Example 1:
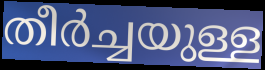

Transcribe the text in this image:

തീർച്ചയുള്ള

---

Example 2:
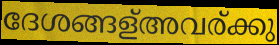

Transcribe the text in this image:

ദേശങ്ങള്അവര്ക്കു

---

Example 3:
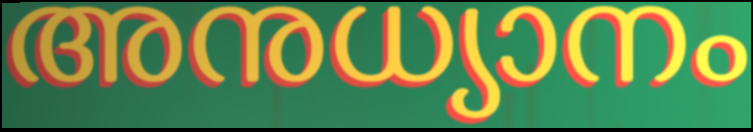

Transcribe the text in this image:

അനുധ്യാനം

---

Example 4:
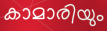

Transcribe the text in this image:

കാമാരിയും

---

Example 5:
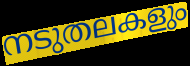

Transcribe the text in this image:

നടുതലകളും